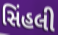
સિંહલી